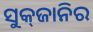
ସୁକ୍‌ଜାନିର